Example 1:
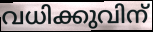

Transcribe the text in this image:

വധിക്കുവിന്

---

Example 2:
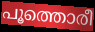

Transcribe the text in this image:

പൂത്തൊരീ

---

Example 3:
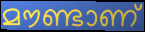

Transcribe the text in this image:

മൗണ്ടാണ്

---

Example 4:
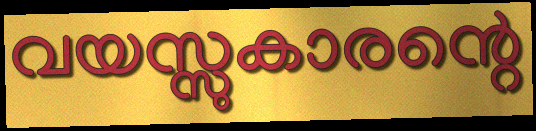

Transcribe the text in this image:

വയസ്സുകാരന്റെ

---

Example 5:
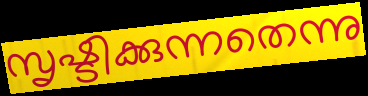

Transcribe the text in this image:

സൃഷ്ടിക്കുന്നതെന്നു